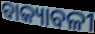
ବାକ୍ୟାବଳୀ